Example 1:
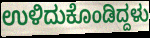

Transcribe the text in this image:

ಉಳಿದುಕೊಂಡಿದ್ದಳು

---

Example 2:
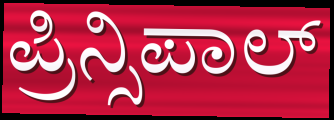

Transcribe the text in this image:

ಪ್ರಿನ್ಸಿಪಾಲ್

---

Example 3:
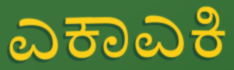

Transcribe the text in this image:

ಎಕಾಎಕಿ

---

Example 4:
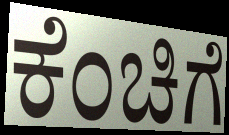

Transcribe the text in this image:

ಕೆಂಚಿಗೆ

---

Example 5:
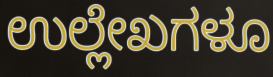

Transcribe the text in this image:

ಉಲ್ಲೇಖಗಳೂ